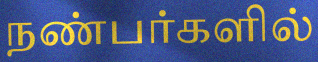
நண்பர்களில்